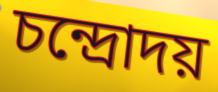
চন্দ্রোদয়